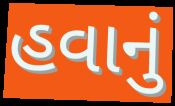
હવાનું